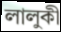
লালুকী